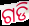
ଗଡି